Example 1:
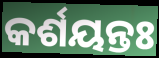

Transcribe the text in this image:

କର୍ଶୟନ୍ତଃ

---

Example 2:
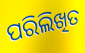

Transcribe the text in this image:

ପରିଲିଖିତ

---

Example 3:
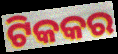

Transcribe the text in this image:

ଟିକକର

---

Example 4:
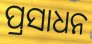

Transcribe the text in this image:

ପ୍ରସାଧନ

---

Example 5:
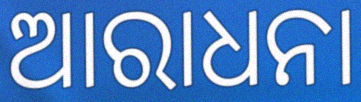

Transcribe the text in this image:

ଆରାଧନା